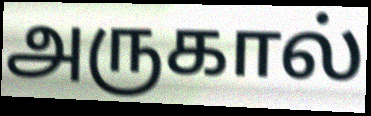
அருகால்